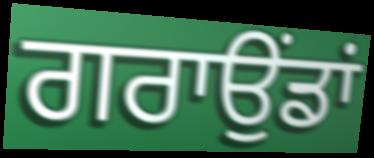
ਗਰਾਉਂਡਾਂ